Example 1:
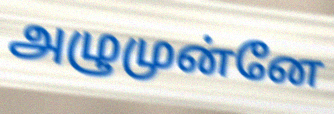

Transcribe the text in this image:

அழுமுன்னே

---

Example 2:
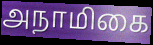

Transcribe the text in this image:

அநாமிகை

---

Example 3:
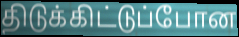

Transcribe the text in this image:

திடுக்கிட்டுப்போன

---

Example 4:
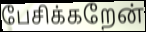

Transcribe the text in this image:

பேசிக்கறேன்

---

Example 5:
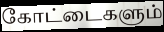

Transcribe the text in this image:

கோட்டைகளும்